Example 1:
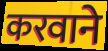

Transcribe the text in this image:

करवाने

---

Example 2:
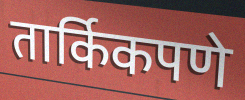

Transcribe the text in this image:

तार्किकपणे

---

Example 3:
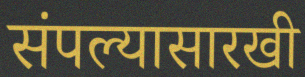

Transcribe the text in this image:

संपल्यासारखी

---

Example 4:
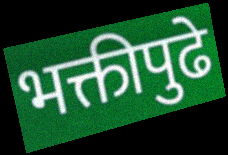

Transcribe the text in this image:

भक्तीपुढे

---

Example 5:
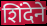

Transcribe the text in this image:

शिंदेने